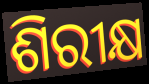
ଶିରୀକ୍ଷ